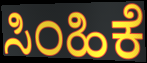
ಸಿಂಹಿಕೆ